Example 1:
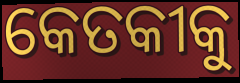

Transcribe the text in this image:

କେତକୀକୁ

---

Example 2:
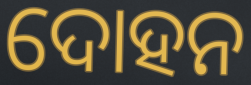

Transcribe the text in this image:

ଦୋହନ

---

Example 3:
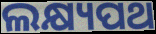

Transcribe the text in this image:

ଲକ୍ଷ୍ୟପଥ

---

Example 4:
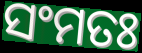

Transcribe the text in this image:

ସଂମତଃ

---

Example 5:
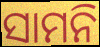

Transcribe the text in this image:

ସାମନି